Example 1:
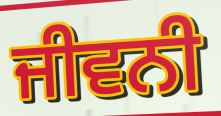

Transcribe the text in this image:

ਜੀਵਨੀ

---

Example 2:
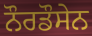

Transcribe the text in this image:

ਨੌਰਡੌਸੇਨ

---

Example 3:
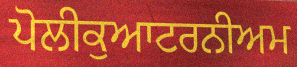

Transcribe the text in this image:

ਪੋਲੀਕੁਆਟਰਨੀਅਮ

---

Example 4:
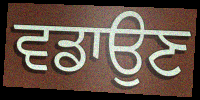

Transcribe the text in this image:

ਵਡਾਉਣ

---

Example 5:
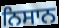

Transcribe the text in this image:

ਨਿਸਾਨ